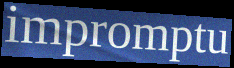
impromptu